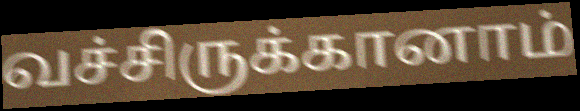
வச்சிருக்கானாம்